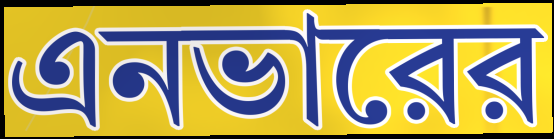
এনভারের